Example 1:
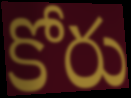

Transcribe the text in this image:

కోరు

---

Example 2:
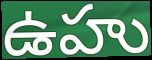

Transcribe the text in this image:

ఉహు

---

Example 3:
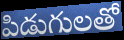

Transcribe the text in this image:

పిడుగులతో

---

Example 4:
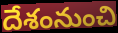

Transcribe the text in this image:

దేశంనుంచి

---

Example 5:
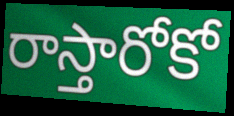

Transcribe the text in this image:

రాస్తారోకో